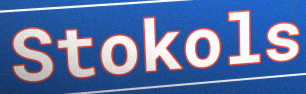
Stokols